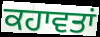
ਕਹਾਵਤਾਂ